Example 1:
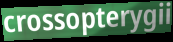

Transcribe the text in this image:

crossopterygii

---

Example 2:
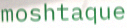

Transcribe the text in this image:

moshtaque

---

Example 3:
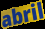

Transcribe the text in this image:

abril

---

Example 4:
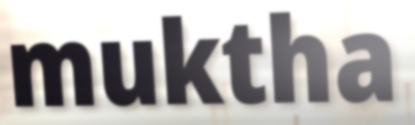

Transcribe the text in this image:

muktha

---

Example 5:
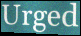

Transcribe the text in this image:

Urged